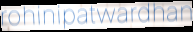
rohinipatwardhan